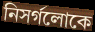
নিসর্গলোকে